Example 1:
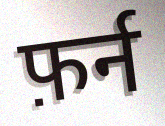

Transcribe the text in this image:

फ़र्न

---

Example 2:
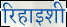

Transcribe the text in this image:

रिहाइशी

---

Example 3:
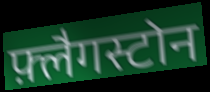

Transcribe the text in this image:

फ़्लैगस्टोन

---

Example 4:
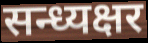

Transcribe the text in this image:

सन्ध्यक्षर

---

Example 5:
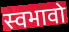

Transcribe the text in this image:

स्वभावो